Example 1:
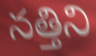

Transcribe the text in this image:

నత్తిని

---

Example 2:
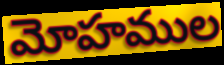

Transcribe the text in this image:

మోహముల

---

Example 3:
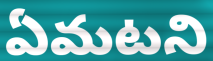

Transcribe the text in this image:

ఏమటని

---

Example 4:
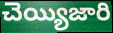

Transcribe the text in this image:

చెయ్యిజారి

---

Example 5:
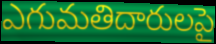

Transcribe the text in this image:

ఎగుమతిదారులపై